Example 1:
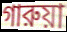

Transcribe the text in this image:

গারুয়া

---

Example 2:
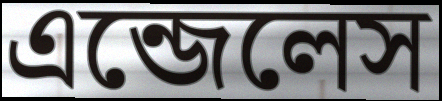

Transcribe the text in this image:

এন্জেলেস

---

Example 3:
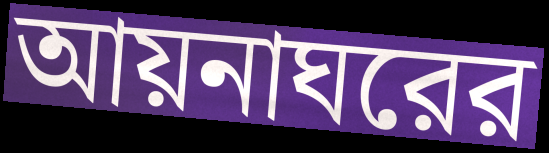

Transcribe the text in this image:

আয়নাঘরের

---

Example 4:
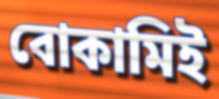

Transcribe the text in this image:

বোকামিই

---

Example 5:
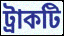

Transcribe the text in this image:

ট্রাকটি